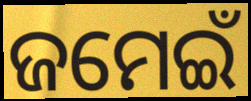
ଜମେଇଁ